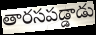
తారసపడ్డాడు